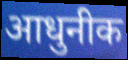
आधुनीक